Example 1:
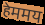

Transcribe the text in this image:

हेममय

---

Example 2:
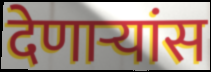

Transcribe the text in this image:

देणाऱ्यांस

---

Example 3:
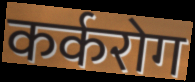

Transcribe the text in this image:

कर्करोग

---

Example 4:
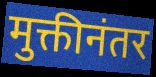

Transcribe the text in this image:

मुक्तीनंतर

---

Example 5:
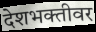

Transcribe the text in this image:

देशभक्तीवर